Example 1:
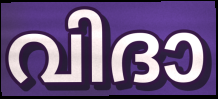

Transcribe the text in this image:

വിദാ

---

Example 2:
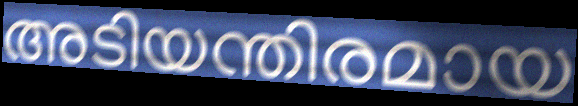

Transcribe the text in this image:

അടിയന്തിരമായ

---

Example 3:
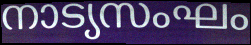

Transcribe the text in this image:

നാട്യസംഘം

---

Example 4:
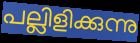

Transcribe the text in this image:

പല്ലിളിക്കുന്നു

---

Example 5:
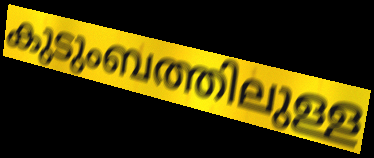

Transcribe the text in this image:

കുടുംബത്തിലുള്ള